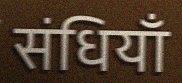
संधियाँ